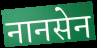
नानसेन